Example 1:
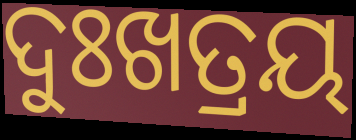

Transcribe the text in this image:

ଦୁଃଖତ୍ରୟ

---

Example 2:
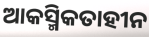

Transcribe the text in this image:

ଆକସ୍ମିକତାହୀନ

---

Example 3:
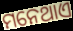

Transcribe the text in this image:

ମନେଥାଏ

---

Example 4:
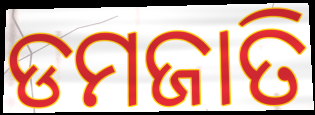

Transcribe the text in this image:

ଡମଜାତି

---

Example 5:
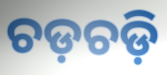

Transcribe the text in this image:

ଚଡ଼ଚଡ଼ି